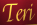
Teri